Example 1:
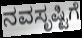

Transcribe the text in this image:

ನವಸೃಷ್ಟಿಗೆ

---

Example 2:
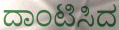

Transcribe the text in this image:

ದಾಂಟಿಸಿದ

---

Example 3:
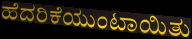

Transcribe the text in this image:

ಹೆದರಿಕೆಯುಂಟಾಯಿತು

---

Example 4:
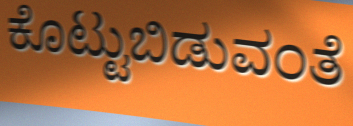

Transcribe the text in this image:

ಕೊಟ್ಟುಬಿಡುವಂತೆ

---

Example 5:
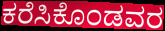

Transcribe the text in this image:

ಕರೆಸಿಕೊಂಡವರ